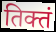
तिक्तं